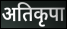
अतिकृपा